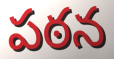
పఠన